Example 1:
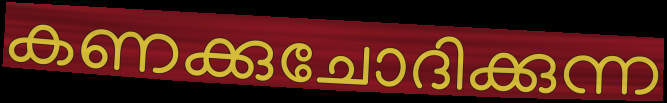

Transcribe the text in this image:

കണക്കുചോദിക്കുന്ന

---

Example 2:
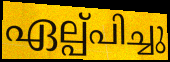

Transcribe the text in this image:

ഏല്പ്പിച്ചു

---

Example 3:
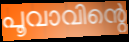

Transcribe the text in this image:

പൂവാവിന്റെ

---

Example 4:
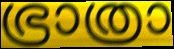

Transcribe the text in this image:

ഭ്രാത്രാ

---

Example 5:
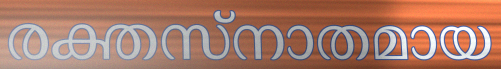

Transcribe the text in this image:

രക്തസ്നാതമായ